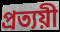
প্রত্যয়ী